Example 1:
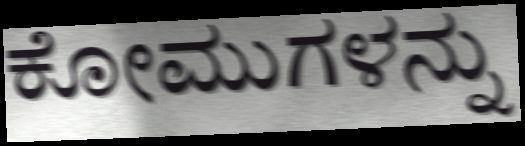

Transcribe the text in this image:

ಕೋಮುಗಳನ್ನು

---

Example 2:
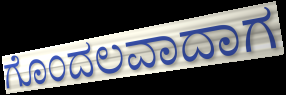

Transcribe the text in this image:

ಗೊಂದಲವಾದಾಗ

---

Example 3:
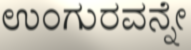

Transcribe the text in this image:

ಉಂಗುರವನ್ನೇ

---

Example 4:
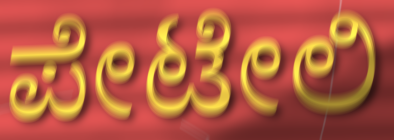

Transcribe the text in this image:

ಪೇಟೇಲಿ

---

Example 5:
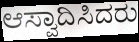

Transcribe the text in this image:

ಆಸ್ವಾದಿಸಿದರು